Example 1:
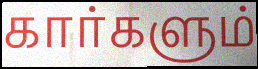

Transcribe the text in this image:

கார்களும்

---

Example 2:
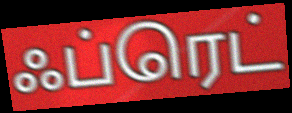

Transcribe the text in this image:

ஃப்ரெட்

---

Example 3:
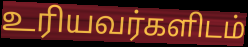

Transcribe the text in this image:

உரியவர்களிடம்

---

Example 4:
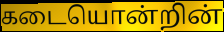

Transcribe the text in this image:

கடையொன்றின்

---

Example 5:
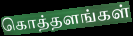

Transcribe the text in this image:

கொத்தளங்கள்